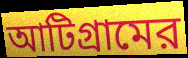
আটিগ্রামের